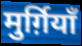
मुर्ग़ियाँ